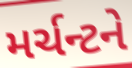
મર્ચન્ટને